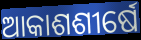
ଆକାଶଶୀର୍ଷେ